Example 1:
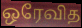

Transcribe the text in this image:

ஒரேவித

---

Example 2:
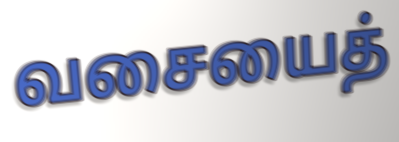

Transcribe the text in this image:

வசையைத்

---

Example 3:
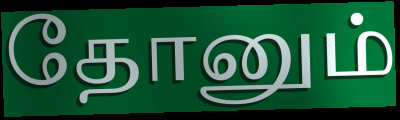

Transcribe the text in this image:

தோனும்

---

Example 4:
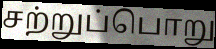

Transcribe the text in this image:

சற்றுப்பொறு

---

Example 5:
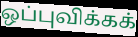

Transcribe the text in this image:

ஒப்புவிக்கக்